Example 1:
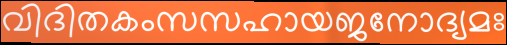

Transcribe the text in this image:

വിദിതകംസസഹായജനോദ്യമഃ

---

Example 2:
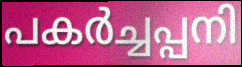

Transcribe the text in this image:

പകർച്ചപ്പനി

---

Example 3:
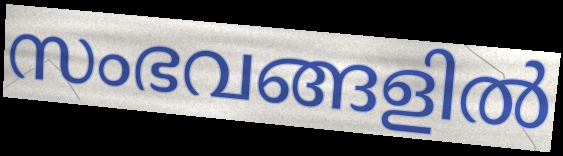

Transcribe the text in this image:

സംഭവങ്ങളിൽ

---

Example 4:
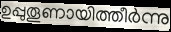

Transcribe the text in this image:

ഉപ്പുതൂണായിത്തീർന്നു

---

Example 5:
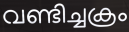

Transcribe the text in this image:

വണ്ടിച്ചക്രം